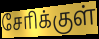
சேரிக்குள்